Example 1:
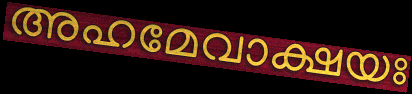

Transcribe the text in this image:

അഹമേവാക്ഷയഃ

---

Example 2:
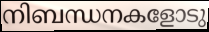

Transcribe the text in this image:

നിബന്ധനകളോടു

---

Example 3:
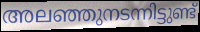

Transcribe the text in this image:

അലഞ്ഞുനടന്നിട്ടുണ്ട്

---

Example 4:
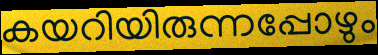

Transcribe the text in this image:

കയറിയിരുന്നപ്പോഴും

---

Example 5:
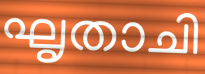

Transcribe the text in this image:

ഘൃതാചി